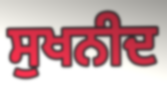
ਸੁਖਨੀਦ